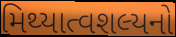
મિથ્યાત્વશલ્યનો